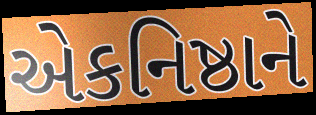
એકનિષ્ઠાને